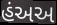
હંઅઅ